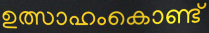
ഉത്സാഹംകൊണ്ട്